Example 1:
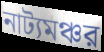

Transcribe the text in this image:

নাট্যমঞ্চর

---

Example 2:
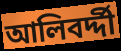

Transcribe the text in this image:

আলিবর্দ্দী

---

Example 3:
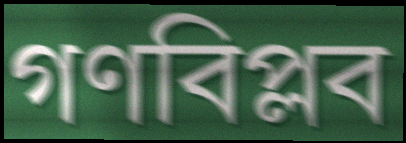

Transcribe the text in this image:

গণবিপ্লব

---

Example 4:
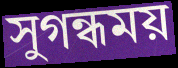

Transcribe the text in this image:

সুগন্ধময়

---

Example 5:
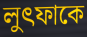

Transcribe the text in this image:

লুৎফাকে